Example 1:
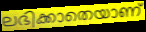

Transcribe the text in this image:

ലഭിക്കാതെയാണ്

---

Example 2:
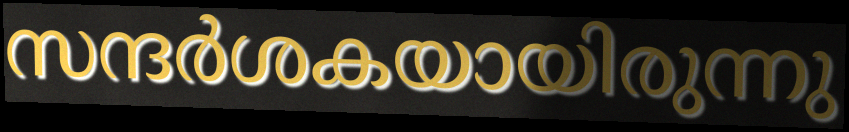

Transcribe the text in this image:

സന്ദർശകയായിരുന്നു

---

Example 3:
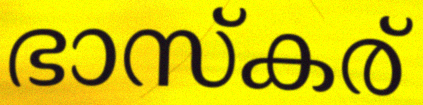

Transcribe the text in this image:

ഭാസ്കര്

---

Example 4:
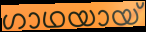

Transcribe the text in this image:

ഗാഥയായ്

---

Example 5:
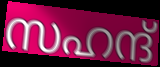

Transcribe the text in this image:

സഹന്ദ്